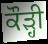
ਕੌੜ੍ਹੀ